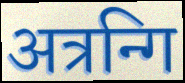
अत्रन्गि